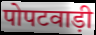
पोपटवाड़ी